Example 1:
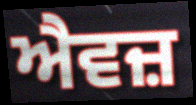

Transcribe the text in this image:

ਐਵਜ਼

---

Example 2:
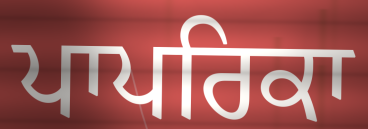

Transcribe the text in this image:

ਪਾਪਰਿਕਾ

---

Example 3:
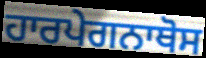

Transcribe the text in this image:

ਹਾਰਪੇਗਨਾਥੋਸ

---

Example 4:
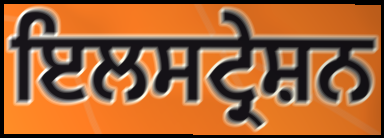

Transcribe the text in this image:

ਇਲਸਟ੍ਰੇਸ਼ਨ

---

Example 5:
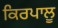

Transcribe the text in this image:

ਕਿਰਪਾਲੂ